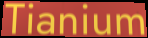
Tianium